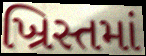
ખ્રિસ્તમાં